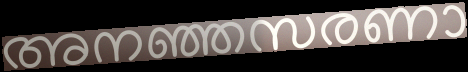
അനഞ്ഞസരണാ